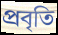
প্রবৃতি